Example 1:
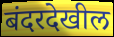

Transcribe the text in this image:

बंदरदेखील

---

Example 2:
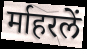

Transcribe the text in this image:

र्माहरलें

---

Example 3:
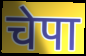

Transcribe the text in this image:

चेपा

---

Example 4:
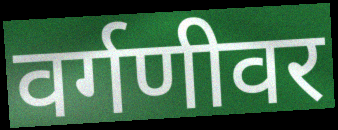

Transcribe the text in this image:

वर्गणीवर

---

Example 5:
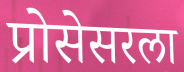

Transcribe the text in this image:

प्रोसेसरला